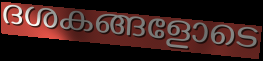
ദശകങ്ങളോടെ